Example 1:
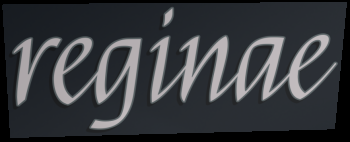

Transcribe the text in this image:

reginae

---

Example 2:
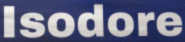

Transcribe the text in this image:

Isodore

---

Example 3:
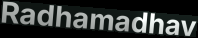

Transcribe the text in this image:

Radhamadhav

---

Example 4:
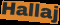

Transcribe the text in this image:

Hallaj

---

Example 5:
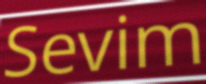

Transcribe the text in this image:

Sevim